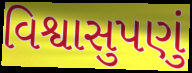
વિશ્વાસુપણું